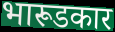
भारूडकार